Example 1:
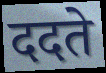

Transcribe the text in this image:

ददते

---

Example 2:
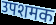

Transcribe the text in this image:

उपशमक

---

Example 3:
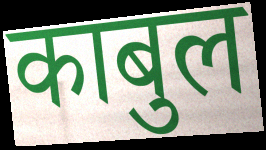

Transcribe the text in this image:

काबुल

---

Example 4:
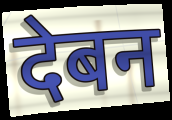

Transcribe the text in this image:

देबन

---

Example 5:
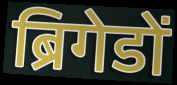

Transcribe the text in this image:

ब्रिगेडों